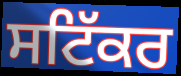
ਸਟਿੱਕਰ